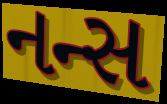
નન્સ